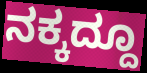
ನಕ್ಕದ್ದೂ